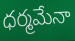
ధర్మమేనా